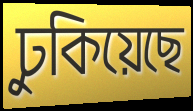
ঢুকিয়েছে